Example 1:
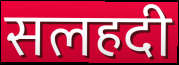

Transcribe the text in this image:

सलहदी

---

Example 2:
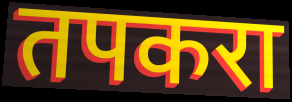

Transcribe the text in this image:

तपकरा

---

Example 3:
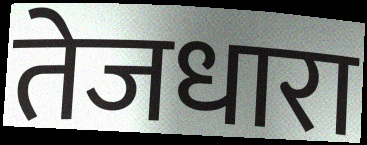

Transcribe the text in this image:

तेजधारा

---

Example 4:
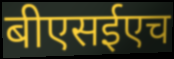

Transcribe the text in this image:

बीएसईएच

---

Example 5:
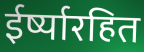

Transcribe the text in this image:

ईर्ष्यारहित